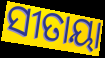
ସୀତାୟା